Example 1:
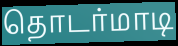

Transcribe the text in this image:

தொடர்மாடி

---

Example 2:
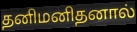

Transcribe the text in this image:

தனிமனிதனால்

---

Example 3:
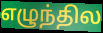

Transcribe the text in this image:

எழுந்தில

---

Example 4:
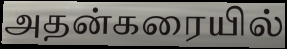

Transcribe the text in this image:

அதன்கரையில்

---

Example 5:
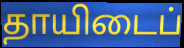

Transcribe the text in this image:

தாயிடைப்